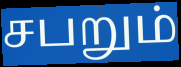
சபறும்